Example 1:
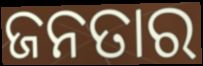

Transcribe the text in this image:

ଜନତାର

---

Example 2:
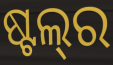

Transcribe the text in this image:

ଷ୍ଟଲ୍‌ର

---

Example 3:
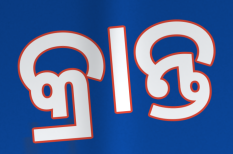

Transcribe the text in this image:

କ୍ରାନ୍ତ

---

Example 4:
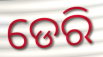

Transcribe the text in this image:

ଡେରି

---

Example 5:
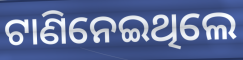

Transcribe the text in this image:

ଟାଣିନେଇଥିଲେ